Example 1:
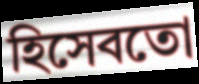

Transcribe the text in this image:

হিসেবতো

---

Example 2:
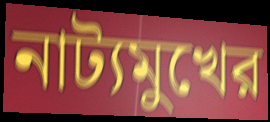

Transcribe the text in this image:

নাট্যমুখের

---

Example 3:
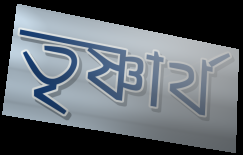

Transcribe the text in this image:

তৃষ্ণার্থ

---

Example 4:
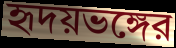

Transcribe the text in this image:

হৃদয়ভঙ্গের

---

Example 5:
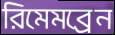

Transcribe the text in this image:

রিমেমব্রেন